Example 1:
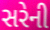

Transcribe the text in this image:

સરેની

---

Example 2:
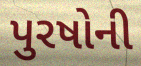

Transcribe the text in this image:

પુરષોની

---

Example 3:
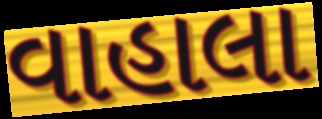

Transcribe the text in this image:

વાહાલા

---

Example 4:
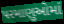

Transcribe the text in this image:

પરમાણુઓમાં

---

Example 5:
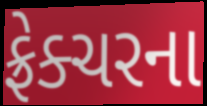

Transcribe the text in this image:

ફ્રેક્ચરના